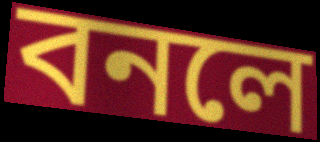
বনলে